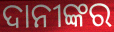
ଦାନୀଙ୍କର